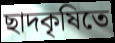
ছাদকৃষিতে